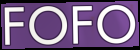
FOFO